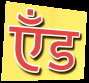
एँड